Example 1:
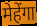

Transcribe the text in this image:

मेहेंगा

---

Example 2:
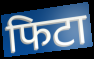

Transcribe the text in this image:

फिटा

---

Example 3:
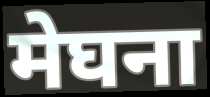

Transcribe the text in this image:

मेघना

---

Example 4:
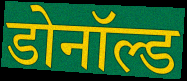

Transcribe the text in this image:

डोनॉल्ड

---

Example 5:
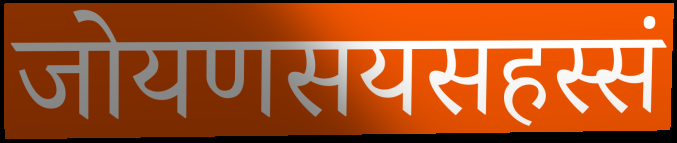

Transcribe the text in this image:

जोयणसयसहस्सं